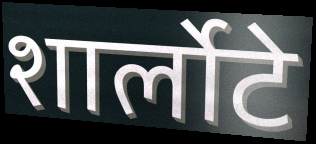
शार्लोटे